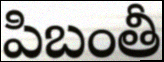
పిబంతీ